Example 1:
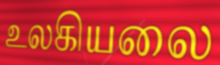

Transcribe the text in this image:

உலகியலை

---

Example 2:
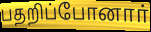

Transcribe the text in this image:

பதறிப்போனார்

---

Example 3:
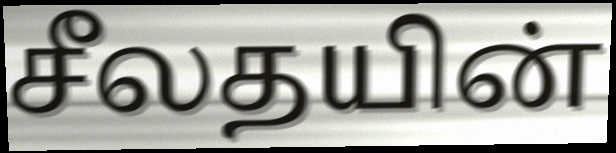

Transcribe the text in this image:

சீலதயின்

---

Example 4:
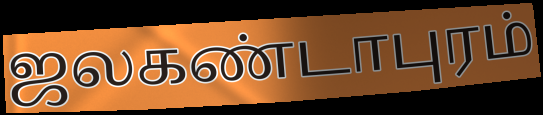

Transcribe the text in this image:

ஜலகண்டாபுரம்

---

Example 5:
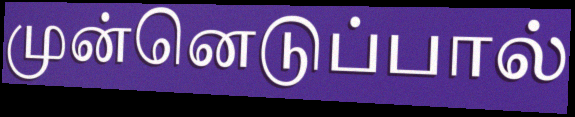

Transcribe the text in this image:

முன்னெடுப்பால்